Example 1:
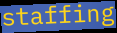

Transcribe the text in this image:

staffing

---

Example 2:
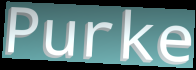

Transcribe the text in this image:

Purke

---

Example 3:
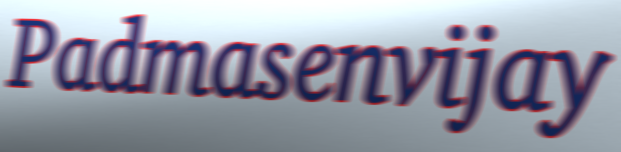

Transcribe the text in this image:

Padmasenvijay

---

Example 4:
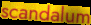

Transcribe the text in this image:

scandalum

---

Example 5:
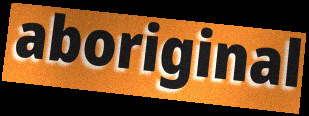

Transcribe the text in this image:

aboriginal